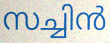
സച്ചിൻ